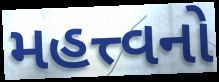
મહત્ત્વનો